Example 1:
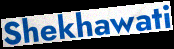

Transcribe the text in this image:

Shekhawati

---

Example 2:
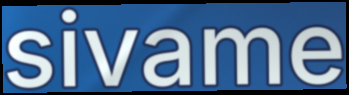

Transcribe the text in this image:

sivame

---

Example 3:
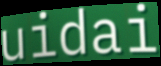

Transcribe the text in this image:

uidai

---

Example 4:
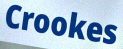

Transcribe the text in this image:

Crookes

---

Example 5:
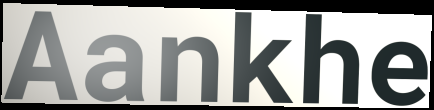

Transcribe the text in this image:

Aankhe